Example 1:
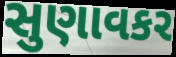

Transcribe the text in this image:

સુણાવકર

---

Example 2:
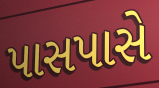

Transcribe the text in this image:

પાસપાસે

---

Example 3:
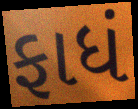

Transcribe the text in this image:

ફાધં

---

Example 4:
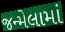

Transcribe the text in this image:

જન્મેલામાં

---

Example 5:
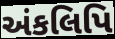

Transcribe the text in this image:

અંકલિપિ